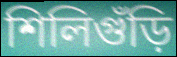
শিলিগুঁড়ি